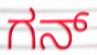
ಗನ್